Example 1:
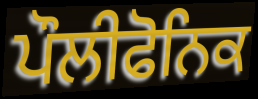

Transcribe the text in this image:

ਪੌਲੀਫੋਨਿਕ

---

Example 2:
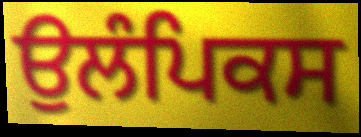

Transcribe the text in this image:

ਉਲੰਪਿਕਸ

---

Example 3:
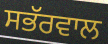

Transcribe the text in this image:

ਸਭੱਰਵਾਲ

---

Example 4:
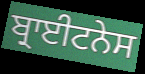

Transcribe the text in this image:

ਬ੍ਰਾਈਟਨੇਸ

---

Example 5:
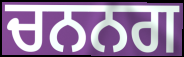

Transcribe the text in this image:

ਚਨਨਗ